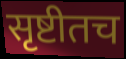
सृष्टीतच